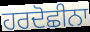
ਹਰਦੋਛੀਨਾ